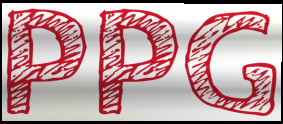
PPG